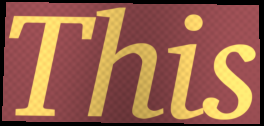
This